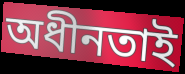
অধীনতাই